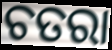
ଚତରା